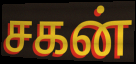
சகன்